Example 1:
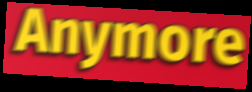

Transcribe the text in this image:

Anymore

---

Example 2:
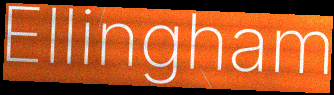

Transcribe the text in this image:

Ellingham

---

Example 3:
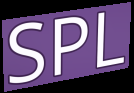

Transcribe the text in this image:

SPL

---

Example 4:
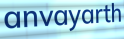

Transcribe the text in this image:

anvayarth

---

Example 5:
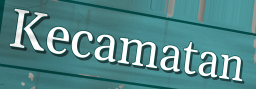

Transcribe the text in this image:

Kecamatan